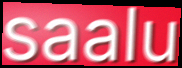
saalu